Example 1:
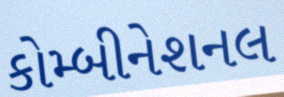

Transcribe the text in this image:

કોમ્બીનેશનલ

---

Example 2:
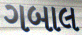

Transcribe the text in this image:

ગબાલ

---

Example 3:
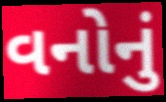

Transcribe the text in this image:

વનોનું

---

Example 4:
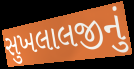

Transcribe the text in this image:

સુખલાલજીનું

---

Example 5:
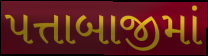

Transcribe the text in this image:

પત્તાબાજીમાં